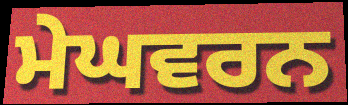
ਮੇਘਵਰਨ